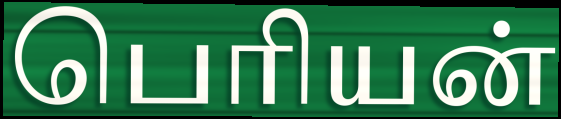
பெரியன்